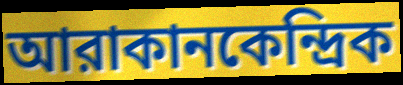
আরাকানকেন্দ্রিক